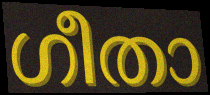
ഗീതാ